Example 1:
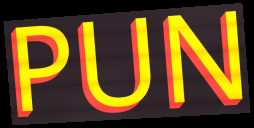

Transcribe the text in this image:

PUN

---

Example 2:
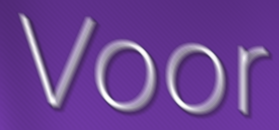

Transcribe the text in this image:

Voor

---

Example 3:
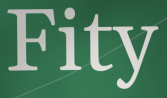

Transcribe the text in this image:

Fity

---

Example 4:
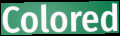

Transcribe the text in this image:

Colored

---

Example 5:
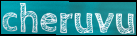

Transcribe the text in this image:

cheruvu